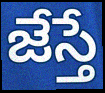
జేస్తే